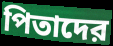
পিতাদের